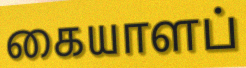
கையாளப்